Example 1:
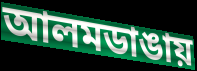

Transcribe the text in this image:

আলমডাঙায়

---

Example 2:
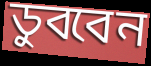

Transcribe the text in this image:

ডুববেন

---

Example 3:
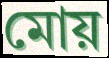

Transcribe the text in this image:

মোয়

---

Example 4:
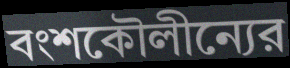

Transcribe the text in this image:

বংশকৌলীন্যের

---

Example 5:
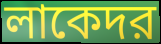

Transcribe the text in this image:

লাকেদর